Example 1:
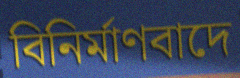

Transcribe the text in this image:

বিনিৰ্মাণবাদে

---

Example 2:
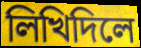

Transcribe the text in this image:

লিখিদিলে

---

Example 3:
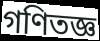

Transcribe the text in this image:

গণিতজ্ঞ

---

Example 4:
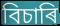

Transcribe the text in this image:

বিচাৰি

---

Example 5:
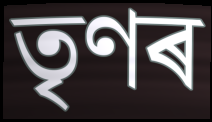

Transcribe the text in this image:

তৃণৰ